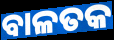
ବାଳତକ